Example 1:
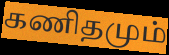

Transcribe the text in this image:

கணிதமும்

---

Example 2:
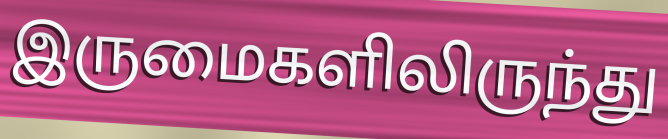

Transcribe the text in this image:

இருமைகளிலிருந்து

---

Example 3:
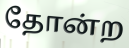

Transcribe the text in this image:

தோன்ற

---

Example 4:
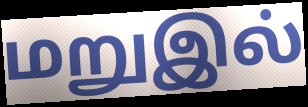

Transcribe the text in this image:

மறுஇல்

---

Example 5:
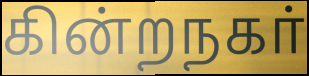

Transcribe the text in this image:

கின்றநகர்